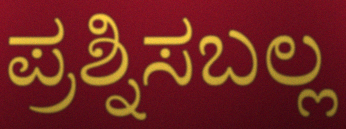
ಪ್ರಶ್ನಿಸಬಲ್ಲ